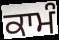
ਕਾਮੰ